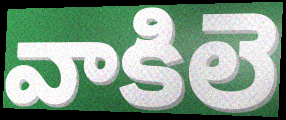
వాకిలె